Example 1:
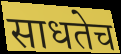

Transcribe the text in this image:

साधतेच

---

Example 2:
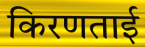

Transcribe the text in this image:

किरणताई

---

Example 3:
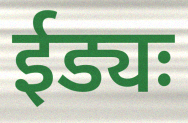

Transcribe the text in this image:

ईड्यः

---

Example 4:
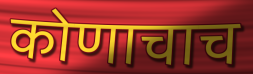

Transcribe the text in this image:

कोणाचाच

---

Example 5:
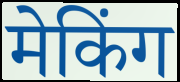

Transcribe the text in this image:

मेकिंग